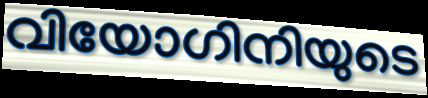
വിയോഗിനിയുടെ